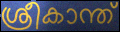
ശ്രീകാന്ത്